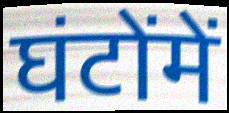
घंटोंमें